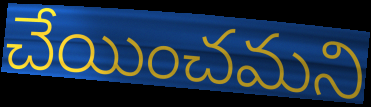
చేయించమని